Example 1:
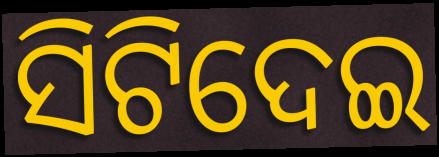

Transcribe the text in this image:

ସିଟିଦେଇ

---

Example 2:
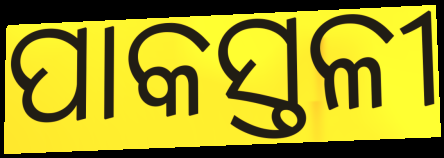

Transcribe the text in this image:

ପାକସ୍ତଳୀ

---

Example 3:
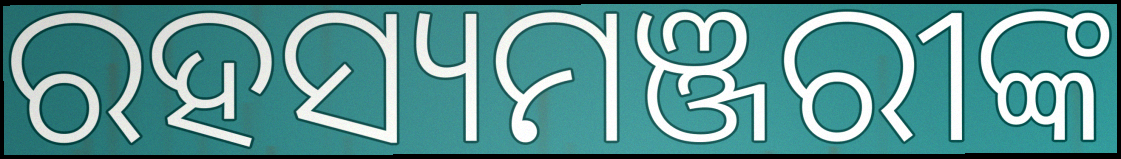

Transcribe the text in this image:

ରହସ୍ୟମଞ୍ଜରୀଙ୍କ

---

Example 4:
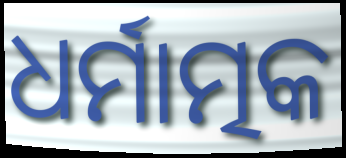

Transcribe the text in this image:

ଧର୍ମାତ୍ମକ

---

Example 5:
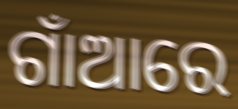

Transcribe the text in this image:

ଗାଁଆରେ